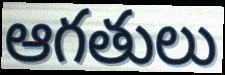
ఆగతులు